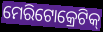
ମେରିଟୋକ୍ରେଟିକ୍